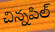
చిన్నపిల్